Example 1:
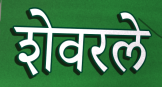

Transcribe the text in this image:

शेवरले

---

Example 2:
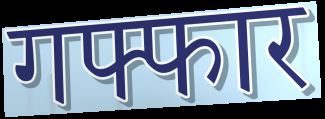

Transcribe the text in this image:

गफ्फार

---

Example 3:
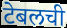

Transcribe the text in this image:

टेबलची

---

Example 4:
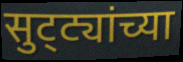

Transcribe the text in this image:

सुट्ट्यांच्या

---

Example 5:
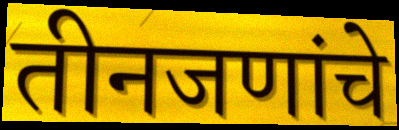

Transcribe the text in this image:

तीनजणांचे